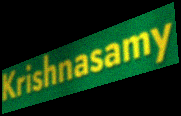
Krishnasamy